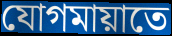
যোগমায়াতে